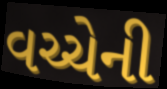
વચ્ચેની